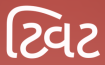
ટ્વિટ